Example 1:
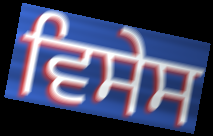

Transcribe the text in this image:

ਵਿਸੇਸ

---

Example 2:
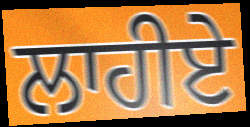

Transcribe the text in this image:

ਲਾਹੀਏ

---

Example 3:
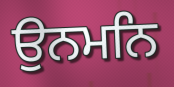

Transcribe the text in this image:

ਉਨਮਨਿ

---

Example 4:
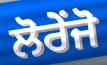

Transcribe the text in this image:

ਲੋਰੇਂਜੋ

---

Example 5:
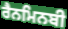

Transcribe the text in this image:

ਰੈਨਮਿਨਬੀ